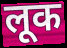
लूक